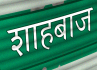
शाहबाज